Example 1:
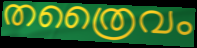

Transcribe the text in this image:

തത്രൈവം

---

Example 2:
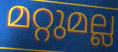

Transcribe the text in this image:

മറ്റുമല്ല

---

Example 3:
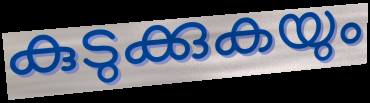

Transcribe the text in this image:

കുടുക്കുകയും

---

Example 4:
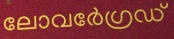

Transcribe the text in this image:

ലോവർേഗ്രഡ്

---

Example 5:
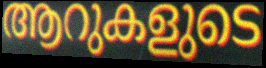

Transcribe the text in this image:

ആറുകളുടെ